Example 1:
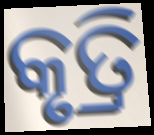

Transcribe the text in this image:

କୃତ୍ରି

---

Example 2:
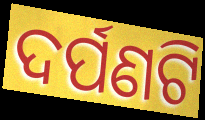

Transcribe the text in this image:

ଦର୍ପଣଟି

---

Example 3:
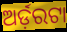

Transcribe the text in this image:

ଅର୍ଡ଼ରଟା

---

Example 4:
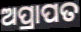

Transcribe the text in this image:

ଅପ୍ରାପତ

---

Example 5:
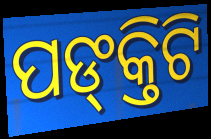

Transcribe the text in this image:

ପଙ୍‌କ୍ତିଟି